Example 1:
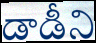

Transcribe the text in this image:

డాడీని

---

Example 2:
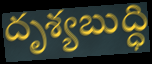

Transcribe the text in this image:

దృశ్యబుద్ధి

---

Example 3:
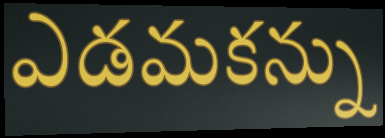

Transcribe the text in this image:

ఎడమకన్ను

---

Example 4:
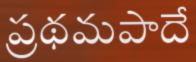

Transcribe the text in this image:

ప్రథమపాదే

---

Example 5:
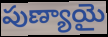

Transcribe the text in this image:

పుణ్యాయై